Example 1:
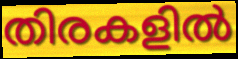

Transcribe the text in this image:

തിരകളിൽ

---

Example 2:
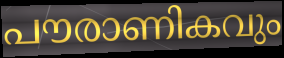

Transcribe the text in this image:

പൗരാണികവും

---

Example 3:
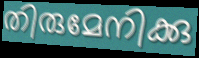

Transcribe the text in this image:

തിരുമേനിക്കു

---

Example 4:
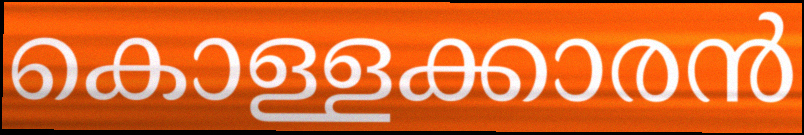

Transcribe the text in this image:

കൊള്ളക്കാരൻ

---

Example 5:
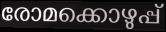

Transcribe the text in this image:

രോമക്കൊഴുപ്പ്